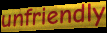
unfriendly